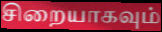
சிறையாகவும்